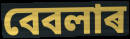
বেবলাৰ